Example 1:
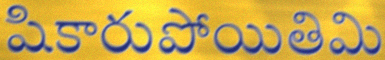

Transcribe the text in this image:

షికారుపోయితిమి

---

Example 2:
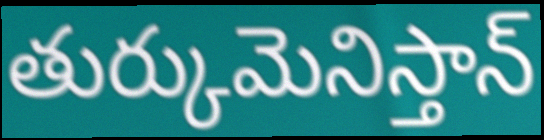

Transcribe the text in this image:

తుర్కుమెనిస్తాన్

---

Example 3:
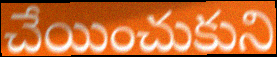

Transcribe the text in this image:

చేయించుకుని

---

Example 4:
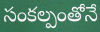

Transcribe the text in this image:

సంకల్పంతోనే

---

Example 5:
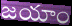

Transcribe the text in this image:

జయాం